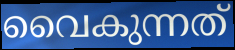
വൈകുന്നത്